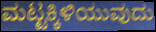
ಮಟ್ಟಕ್ಕಿಳಿಯುವುದು